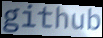
github